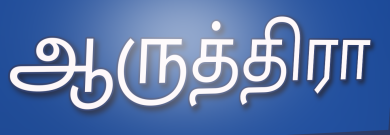
ஆருத்திரா